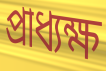
প্রাধ্যক্ষ